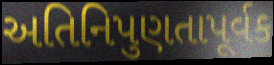
અતિનિપુણતાપૂર્વક